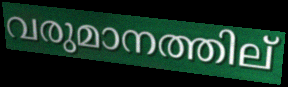
വരുമാനത്തില്